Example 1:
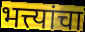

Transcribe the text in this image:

भत्त्यांचा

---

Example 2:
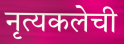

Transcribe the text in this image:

नृत्यकलेची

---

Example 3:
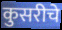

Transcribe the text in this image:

कुसरीचे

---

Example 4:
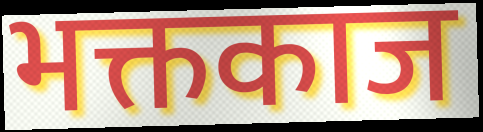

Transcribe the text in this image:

भक्तकाज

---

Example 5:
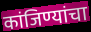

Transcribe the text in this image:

कांजिण्यांचा